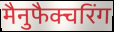
मैनुफैक्चरिंग